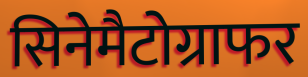
सिनेमैटोग्राफर